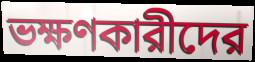
ভক্ষণকারীদের